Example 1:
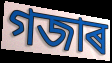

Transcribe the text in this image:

গজাৰ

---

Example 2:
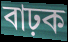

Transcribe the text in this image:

বাঢ়ক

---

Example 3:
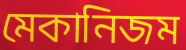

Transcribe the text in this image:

মেকানিজম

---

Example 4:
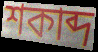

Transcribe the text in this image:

শকাব্দ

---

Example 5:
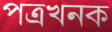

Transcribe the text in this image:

পত্ৰখনক